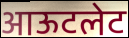
आऊटलेट